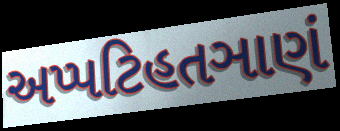
અપ્પટિહતઞાણં